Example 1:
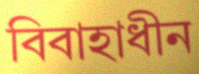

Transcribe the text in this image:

বিবাহাধীন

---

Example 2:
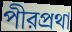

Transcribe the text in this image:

পীরপ্রথা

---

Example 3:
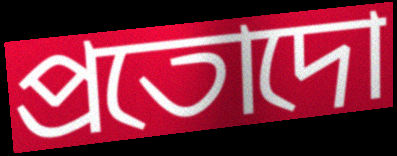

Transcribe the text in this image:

প্রতোদো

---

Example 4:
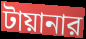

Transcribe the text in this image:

টায়ানার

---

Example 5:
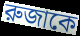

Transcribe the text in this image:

রুজাকে